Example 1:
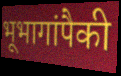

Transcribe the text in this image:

भूभागांपैकी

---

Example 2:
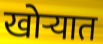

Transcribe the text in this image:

खोऱ्यात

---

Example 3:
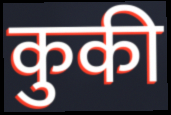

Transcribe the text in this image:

कुकी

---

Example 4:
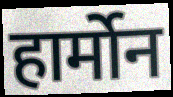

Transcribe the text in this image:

हार्मोन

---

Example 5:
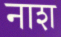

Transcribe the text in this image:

नाश